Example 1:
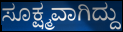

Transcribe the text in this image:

ಸೂಕ್ಷ್ಮವಾಗಿದ್ದು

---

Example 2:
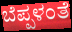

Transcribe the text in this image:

ಬೆಪ್ಪಳಂತೆ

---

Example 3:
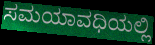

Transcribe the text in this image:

ಸಮಯಾವಧಿಯಲ್ಲಿ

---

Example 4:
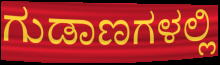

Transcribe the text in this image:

ಗುಡಾಣಗಳಲ್ಲಿ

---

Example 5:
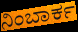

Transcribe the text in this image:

ನಿಂಬಾರ್ಕ